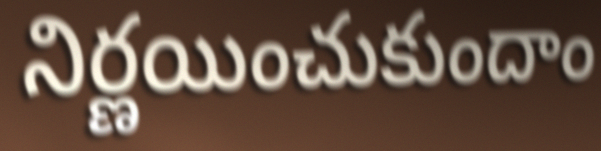
నిర్ణయించుకుందాం